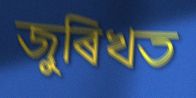
জুৰিখত